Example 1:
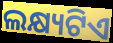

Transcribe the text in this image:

ଲକ୍ଷ୍ୟଟିଏ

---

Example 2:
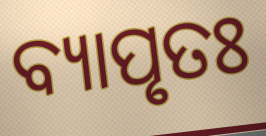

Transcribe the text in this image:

ବ୍ୟାପୃତଃ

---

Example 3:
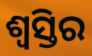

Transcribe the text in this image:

ଶ୍ୱସ୍ତିର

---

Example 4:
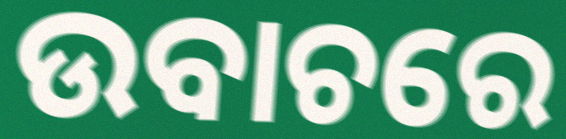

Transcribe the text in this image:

ଉବାଚରେ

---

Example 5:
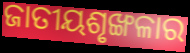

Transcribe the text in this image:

ଜାତୀୟଶୃଙ୍ଖଳାର